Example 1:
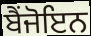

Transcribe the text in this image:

ਬੈਂਜੋਇਨ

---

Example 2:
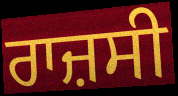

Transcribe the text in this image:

ਰਾਜ਼ਸੀ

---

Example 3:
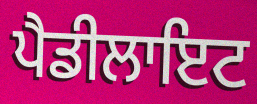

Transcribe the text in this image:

ਪੈਡੀਲਾਇਟ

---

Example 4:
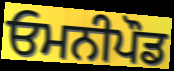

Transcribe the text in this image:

ਓਮਨੀਪੌਡ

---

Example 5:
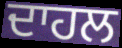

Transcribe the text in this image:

ਦਾਹਲ